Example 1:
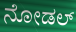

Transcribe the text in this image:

ನೋಡಲ್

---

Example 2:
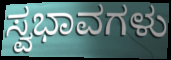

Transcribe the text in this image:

ಸ್ವಭಾವಗಳು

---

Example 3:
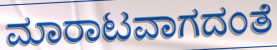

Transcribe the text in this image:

ಮಾರಾಟವಾಗದಂತೆ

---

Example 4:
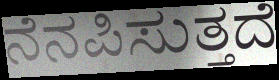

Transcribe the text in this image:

ನೆನಪಿಸುತ್ತದೆ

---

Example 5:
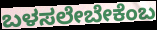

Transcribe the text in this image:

ಬಳಸಲೇಬೇಕೆಂಬ